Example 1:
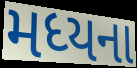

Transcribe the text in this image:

મધ્યના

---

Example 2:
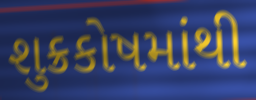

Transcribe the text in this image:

શુક્રકોષમાંથી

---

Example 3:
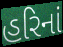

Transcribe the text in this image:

હરિનાં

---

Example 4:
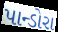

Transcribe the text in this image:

પાન્ડોરા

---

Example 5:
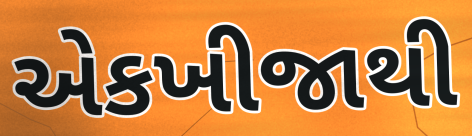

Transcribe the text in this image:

એકખીજાથી